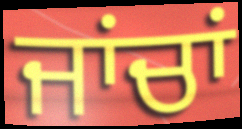
ਜਾਂਚਾਂ